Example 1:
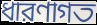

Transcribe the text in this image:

ধারণাগত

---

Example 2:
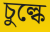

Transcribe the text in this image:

চুল্কে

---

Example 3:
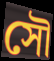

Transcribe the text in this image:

সৌ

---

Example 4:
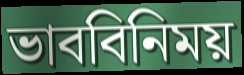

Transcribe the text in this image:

ভাববিনিময়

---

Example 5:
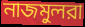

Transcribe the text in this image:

নাজমুলরা